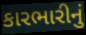
કારભારીનું